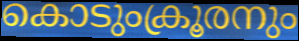
കൊടുംക്രൂരനും